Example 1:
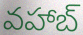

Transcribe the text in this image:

వహాబ్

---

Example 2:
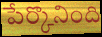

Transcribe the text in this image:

పేర్కొనింది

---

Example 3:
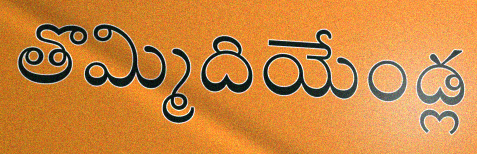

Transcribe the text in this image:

తొమ్మిదియేండ్ల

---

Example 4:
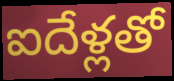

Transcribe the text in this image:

ఐదేళ్లతో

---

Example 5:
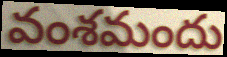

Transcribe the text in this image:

వంశమందు